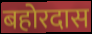
बहोरदास